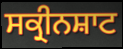
ਸਕ੍ਰੀਨਸ਼ਾਟ